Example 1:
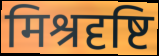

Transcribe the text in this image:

मिश्रदृष्टि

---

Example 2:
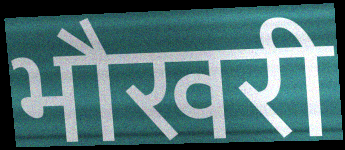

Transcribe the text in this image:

भौखरी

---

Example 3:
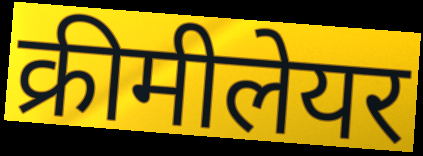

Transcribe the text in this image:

क्रीमीलेयर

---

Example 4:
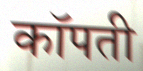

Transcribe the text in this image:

कॉपती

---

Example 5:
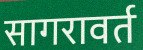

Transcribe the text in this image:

सागरावर्त